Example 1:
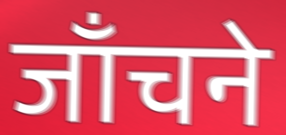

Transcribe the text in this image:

जाँचने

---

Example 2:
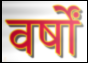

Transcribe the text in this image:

वर्षों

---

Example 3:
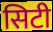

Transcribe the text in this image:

सिटी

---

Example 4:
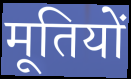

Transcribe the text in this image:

मूतियों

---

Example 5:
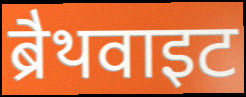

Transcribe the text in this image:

ब्रैथवाइट